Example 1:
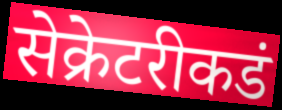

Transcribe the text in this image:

सेक्रेटरीकडं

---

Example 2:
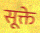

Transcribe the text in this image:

सूक्ते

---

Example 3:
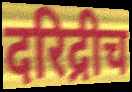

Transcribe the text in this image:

दरिद्रीच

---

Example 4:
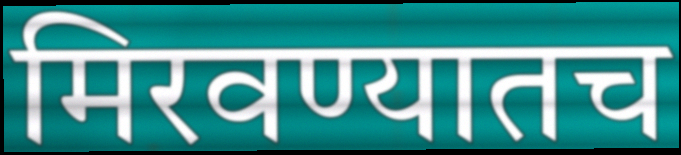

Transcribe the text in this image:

मिरवण्यातच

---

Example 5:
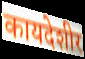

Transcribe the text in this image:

कायदेशीर